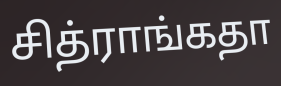
சித்ராங்கதா